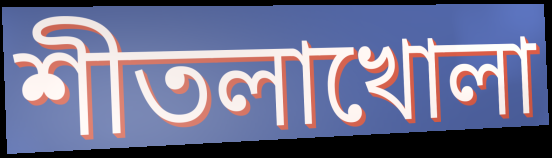
শীতলাখোলা